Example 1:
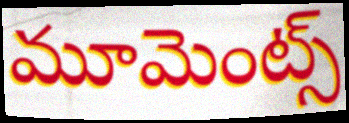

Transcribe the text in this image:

మూమెంట్స్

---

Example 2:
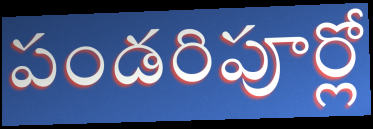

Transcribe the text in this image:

పండరిపూర్లో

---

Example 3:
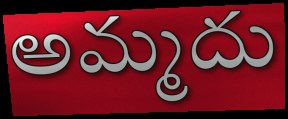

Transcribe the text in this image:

అమ్మదు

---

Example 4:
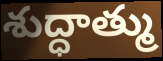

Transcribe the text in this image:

శుద్ధాత్ము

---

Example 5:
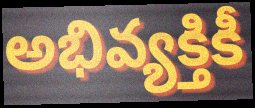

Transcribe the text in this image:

అభివ్యక్తికీ